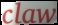
claw